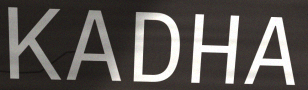
KADHA